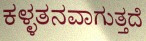
ಕಳ್ಳತನವಾಗುತ್ತದೆ